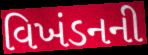
વિખંડનની